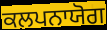
ਕਲਪਨਾਯੋਗ